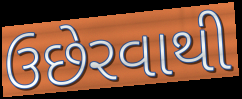
ઉછેરવાથી